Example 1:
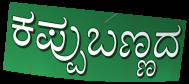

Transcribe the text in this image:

ಕಪ್ಪುಬಣ್ಣದ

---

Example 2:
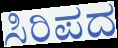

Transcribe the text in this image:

ಸಿರಿಪದ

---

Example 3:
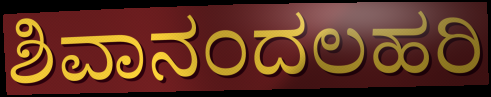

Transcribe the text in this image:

ಶಿವಾನಂದಲಹರಿ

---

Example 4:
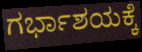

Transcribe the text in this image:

ಗರ್ಭಾಶಯಕ್ಕೆ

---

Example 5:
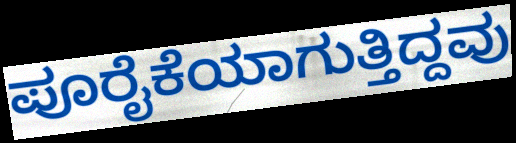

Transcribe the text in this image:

ಪೂರೈಕೆಯಾಗುತ್ತಿದ್ದವು